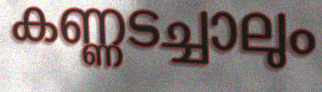
കണ്ണടച്ചാലും